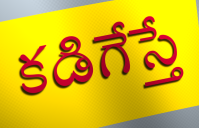
కడిగేస్తే